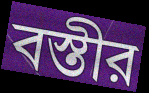
বস্তীর